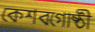
কেশবগোষ্ঠী